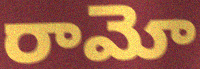
రామో